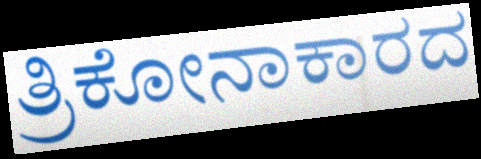
ತ್ರಿಕೋನಾಕಾರದ